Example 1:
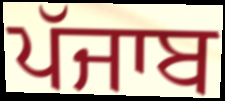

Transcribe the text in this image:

ਪੱਜਾਬ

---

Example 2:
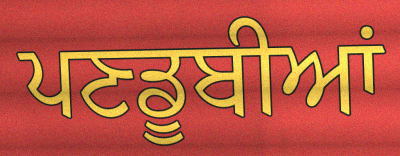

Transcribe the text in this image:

ਪਣਡੂਬੀਆਂ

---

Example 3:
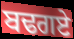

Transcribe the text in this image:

ਬਢਗਏ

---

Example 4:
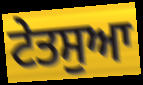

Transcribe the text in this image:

ਟੇਤਸੁਆ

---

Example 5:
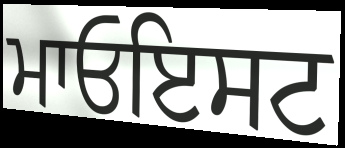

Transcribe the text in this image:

ਮਾਓਇਸਟ